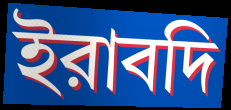
ইরাবদি